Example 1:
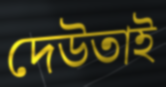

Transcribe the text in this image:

দেউতাই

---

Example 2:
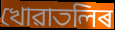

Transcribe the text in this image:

খোৱাতলিৰ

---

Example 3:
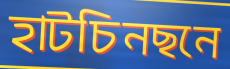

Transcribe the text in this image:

হাটচিনছনে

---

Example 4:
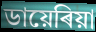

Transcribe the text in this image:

ডায়েৰিয়া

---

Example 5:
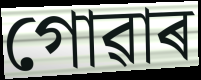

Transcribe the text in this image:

গোৱাৰ